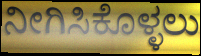
ನೀಗಿಸಿಕೊಳ್ಳಲು